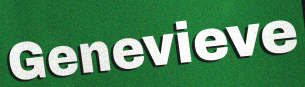
Genevieve